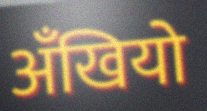
अँखियो